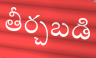
తీర్చబడి